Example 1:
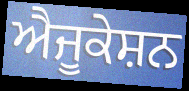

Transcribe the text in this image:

ਐਜੂਕੇਸ਼ਨ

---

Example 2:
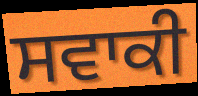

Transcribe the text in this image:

ਸਵਾਕੀ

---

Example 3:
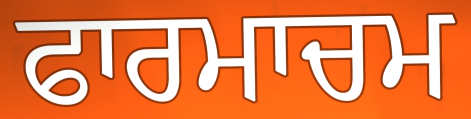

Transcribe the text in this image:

ਫਾਰਮਾਚਮ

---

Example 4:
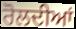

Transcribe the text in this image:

ਰੋਲਦੀਆਂ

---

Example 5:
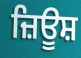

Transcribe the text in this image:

ਜ਼ਿਊਸ਼